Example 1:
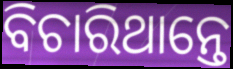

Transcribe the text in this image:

ବିଚାରିଥାନ୍ତେ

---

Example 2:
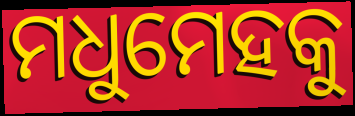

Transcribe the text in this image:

ମଧୁମେହକୁ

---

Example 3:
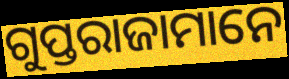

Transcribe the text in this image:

ଗୁପ୍ତରାଜାମାନେ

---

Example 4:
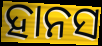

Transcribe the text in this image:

ହାନସ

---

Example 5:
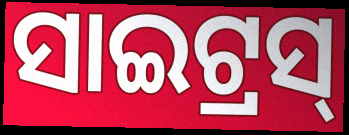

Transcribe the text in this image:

ସାଇଟ୍ରସ୍